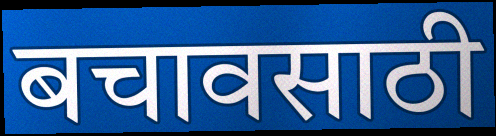
बचावसाठी